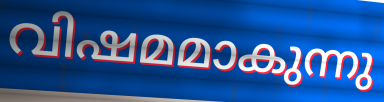
വിഷമമാകുന്നു